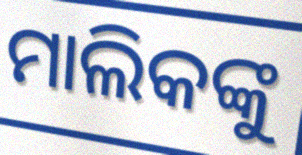
ମାଲିକଙ୍କୁ